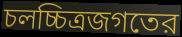
চলচ্চিত্রজগতের